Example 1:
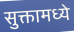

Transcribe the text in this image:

सुक्तामध्ये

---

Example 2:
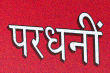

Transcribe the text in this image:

परधनीं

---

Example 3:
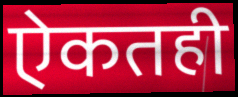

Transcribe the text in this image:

ऐकतही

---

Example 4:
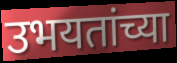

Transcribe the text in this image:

उभयतांच्या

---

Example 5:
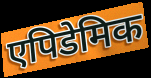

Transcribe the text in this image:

एपिडेमिक